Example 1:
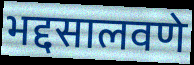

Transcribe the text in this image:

भद्दसालवणे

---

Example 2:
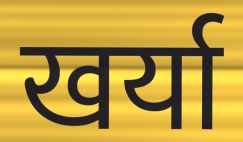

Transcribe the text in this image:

खर्या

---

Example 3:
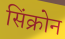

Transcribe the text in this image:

सिंक्रोन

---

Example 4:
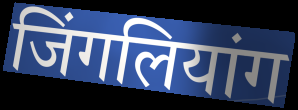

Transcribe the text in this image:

जिंगलियांग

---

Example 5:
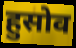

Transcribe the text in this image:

हुसोव